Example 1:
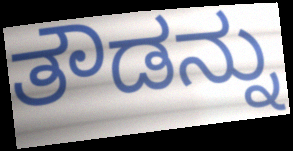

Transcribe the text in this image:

ತೌಡನ್ನು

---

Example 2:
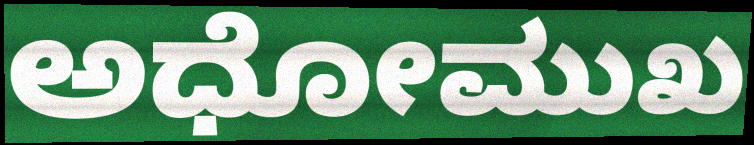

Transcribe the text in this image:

ಅಧೋಮುಖ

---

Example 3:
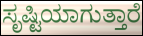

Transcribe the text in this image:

ಸೃಷ್ಟಿಯಾಗುತ್ತಾರೆ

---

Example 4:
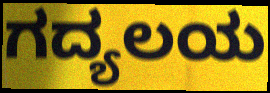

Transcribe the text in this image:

ಗದ್ಯಲಯ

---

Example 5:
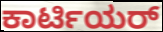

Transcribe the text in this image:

ಕಾರ್ಟಿಯರ್